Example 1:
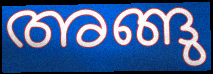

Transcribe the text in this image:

അങ്ങു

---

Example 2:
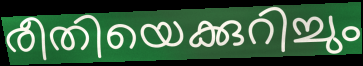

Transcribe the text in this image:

രീതിയെക്കുറിച്ചും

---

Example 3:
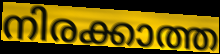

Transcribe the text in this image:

നിരക്കാത്ത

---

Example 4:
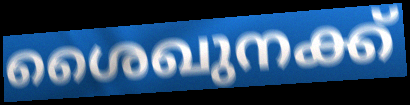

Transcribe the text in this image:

ശൈഖുനക്ക്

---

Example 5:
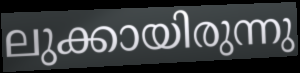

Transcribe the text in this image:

ലുക്കായിരുന്നു